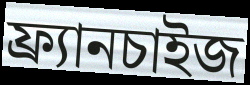
ফ্র্যানচাইজ